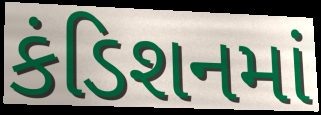
કંડિશનમાં